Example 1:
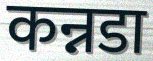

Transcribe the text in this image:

कन्नडा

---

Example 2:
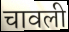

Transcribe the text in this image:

चावली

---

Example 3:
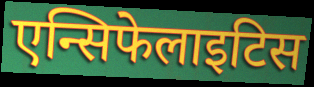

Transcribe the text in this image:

एन्सिफेलाइटिस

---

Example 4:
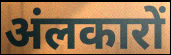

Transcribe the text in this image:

अंलकारों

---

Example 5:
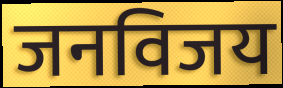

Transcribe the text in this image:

जनविजय